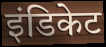
इंडिकेट